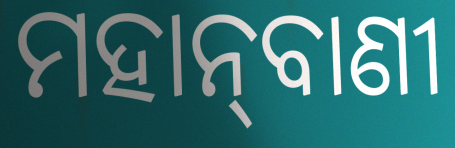
ମହାନ୍‌ବାଣୀ